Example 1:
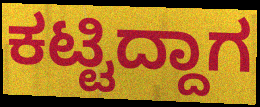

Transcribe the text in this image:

ಕಟ್ಟಿದ್ದಾಗ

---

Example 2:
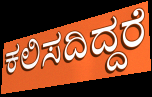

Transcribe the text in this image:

ಕಲಿಸದಿದ್ದರೆ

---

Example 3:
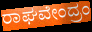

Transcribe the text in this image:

ರಾಘವೇಂದ್ರಂ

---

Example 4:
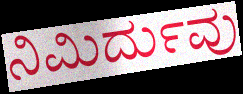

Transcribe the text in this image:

ನಿಮಿರ್ದುವು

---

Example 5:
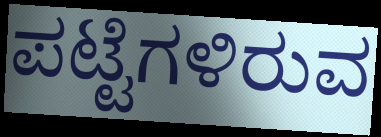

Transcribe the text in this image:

ಪಟ್ಟೆಗಳಿರುವ